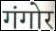
गंगोर